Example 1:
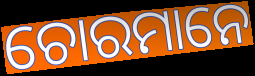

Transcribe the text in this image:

ଚୋରମାନେ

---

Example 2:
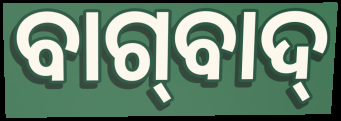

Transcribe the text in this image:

ବାଗ୍‌ବାଦ୍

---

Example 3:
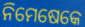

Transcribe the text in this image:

ନିମେଷେକେ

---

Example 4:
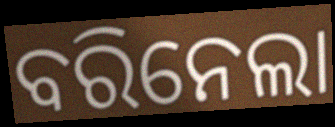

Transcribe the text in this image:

ବରିନେଲା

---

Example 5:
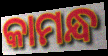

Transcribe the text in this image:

କାମନ୍ଧ